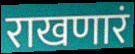
राखणारं